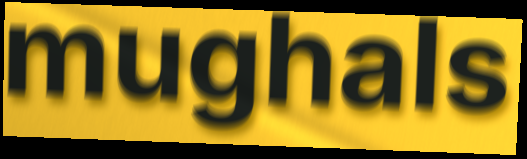
mughals